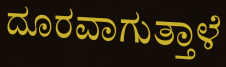
ದೂರವಾಗುತ್ತಾಳೆ